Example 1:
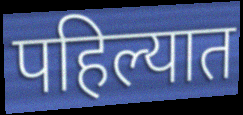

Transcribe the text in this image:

पहिल्यात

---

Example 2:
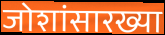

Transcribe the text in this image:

जोशांसारख्या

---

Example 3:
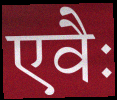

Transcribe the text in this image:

एवैः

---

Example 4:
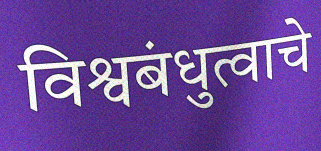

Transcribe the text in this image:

विश्वबंधुत्वाचे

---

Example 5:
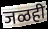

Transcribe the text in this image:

जळही